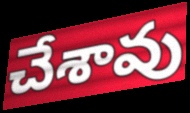
చేశావు